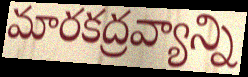
మారకద్రవ్యాన్ని